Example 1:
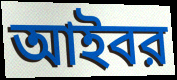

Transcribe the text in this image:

আইবর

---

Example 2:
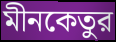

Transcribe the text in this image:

মীনকেতুর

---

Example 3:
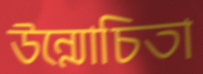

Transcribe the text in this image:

উন্মোচিতা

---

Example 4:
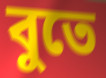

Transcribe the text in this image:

বুতে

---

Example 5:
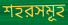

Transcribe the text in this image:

শহরসমূহ